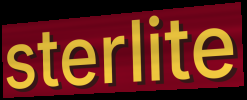
sterlite